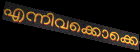
എന്നിവക്കൊക്കെ